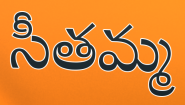
సీతమ్మ